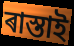
ৰাস্তাই